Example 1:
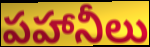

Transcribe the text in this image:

పహానీలు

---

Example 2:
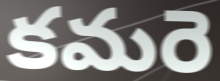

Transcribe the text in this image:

కమరె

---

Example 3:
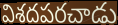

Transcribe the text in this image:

విశదపరచాడు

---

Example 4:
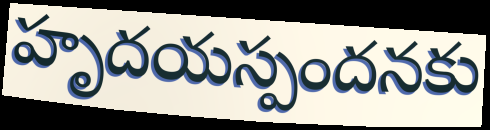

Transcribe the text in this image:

హృదయస్పందనకు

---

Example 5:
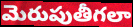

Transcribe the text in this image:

మెరుపుతీగలా